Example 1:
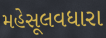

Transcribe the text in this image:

મહેસૂલવધારા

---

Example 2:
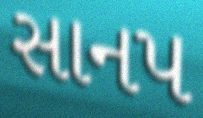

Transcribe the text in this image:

સાનપ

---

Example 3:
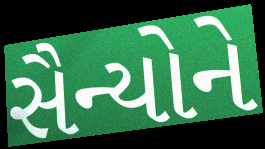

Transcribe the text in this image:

સૈન્યોને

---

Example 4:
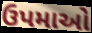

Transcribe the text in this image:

ઉપમાઓ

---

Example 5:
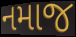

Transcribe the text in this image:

નમાજ